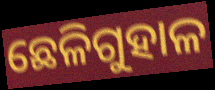
ଛେଳିଗୁହାଳ